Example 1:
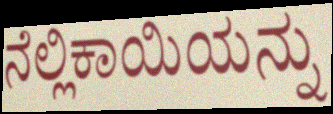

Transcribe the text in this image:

ನೆಲ್ಲಿಕಾಯಿಯನ್ನು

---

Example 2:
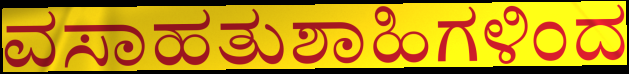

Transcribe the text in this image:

ವಸಾಹತುಶಾಹಿಗಳಿಂದ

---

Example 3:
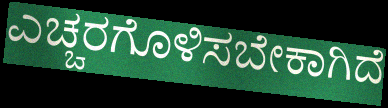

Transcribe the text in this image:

ಎಚ್ಚರಗೊಳಿಸಬೇಕಾಗಿದೆ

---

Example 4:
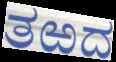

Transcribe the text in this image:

ತಱದ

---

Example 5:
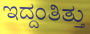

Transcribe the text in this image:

ಇದ್ದಂತಿತ್ತು